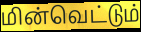
மின்வெட்டும்